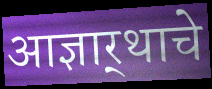
आज्ञार्थाचे